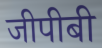
जीपीबी